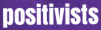
positivists